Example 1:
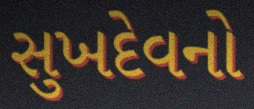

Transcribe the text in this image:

સુખદેવનો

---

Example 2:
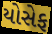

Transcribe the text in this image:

યોસેફ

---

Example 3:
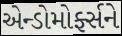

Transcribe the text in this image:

એન્ડોમોર્ફ્સને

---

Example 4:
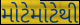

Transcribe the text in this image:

મોટેમોટેથી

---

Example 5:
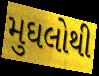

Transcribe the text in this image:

મુઘલોથી